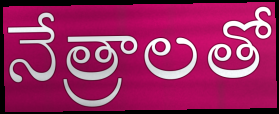
నేత్రాలతో